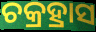
ଚକ୍ରହ୍ରାସ